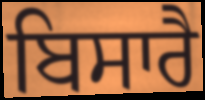
ਬਿਸਾਰੈ